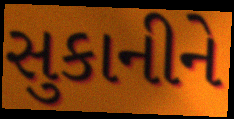
સુકાનીને